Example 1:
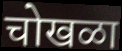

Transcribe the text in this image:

चोखळा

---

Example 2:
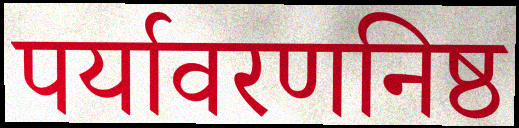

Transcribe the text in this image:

पर्यावरणनिष्ठ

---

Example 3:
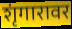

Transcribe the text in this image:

शृंगारावर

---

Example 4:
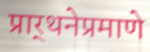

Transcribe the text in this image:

प्रार्थनेप्रमाणे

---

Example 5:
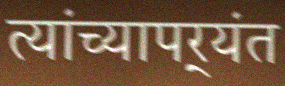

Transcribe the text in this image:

त्यांच्यापर्यंत